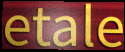
etale